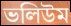
ভলিউম